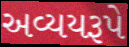
અવ્યયરૂપે